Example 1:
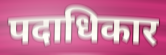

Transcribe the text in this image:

पदाधिकार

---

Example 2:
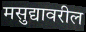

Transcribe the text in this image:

मसुद्यावरील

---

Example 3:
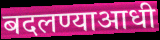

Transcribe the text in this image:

बदलण्याआधी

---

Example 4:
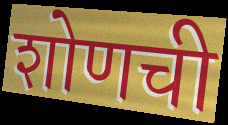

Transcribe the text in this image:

शोणची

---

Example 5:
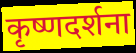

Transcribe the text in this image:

कृष्णदर्शना